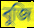
বুজি